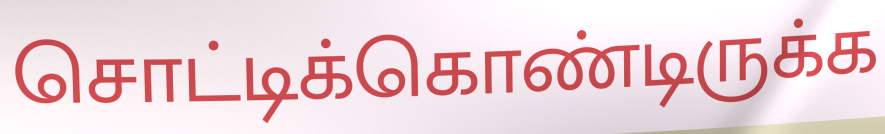
சொட்டிக்கொண்டிருக்க